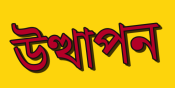
উত্থাপন